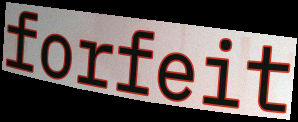
forfeit